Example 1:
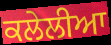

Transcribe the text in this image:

ਕਲੇਲੀਆ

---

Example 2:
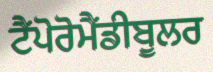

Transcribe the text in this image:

ਟੈਂਪੋਰੋਮੈਂਡੀਬੂਲਰ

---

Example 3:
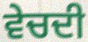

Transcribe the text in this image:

ਵੇਚਦੀ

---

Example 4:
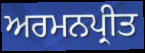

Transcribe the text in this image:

ਅਰਮਨਪ੍ਰੀਤ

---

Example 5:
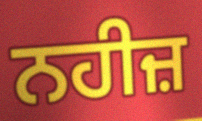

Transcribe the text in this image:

ਨਹੀਜ਼